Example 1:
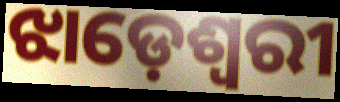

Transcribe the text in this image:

ଝାଡ଼େଶ୍ୱରୀ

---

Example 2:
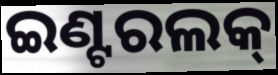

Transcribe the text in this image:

ଇଣ୍ଟରଲକ୍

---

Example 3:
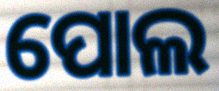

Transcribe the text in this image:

ପୋଲ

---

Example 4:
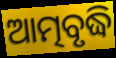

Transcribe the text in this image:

ଆତ୍ମବୃଦ୍ଧି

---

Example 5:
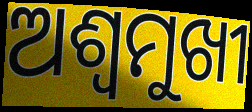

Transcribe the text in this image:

ଅଶ୍ୱମୁଖୀ